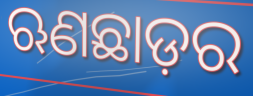
ଋଣଛାଡ଼ର